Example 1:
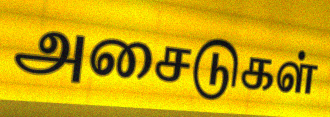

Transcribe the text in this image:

அசைடுகள்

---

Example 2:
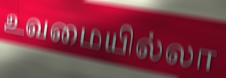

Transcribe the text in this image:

உவமையில்லா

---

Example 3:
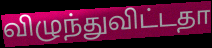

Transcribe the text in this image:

விழுந்துவிட்டதா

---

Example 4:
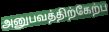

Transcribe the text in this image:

அனுபவத்திற்கேற்ப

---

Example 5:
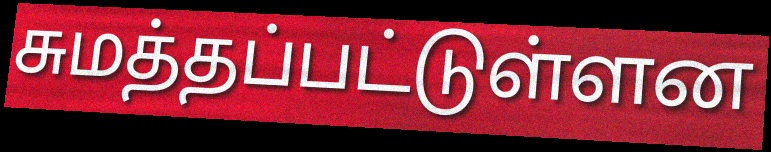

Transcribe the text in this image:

சுமத்தப்பட்டுள்ளன